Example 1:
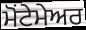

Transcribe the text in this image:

ਮੋਂਟੇਮੇਅਰ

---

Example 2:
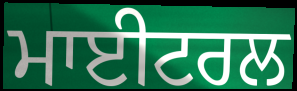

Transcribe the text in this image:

ਮਾਈਟਰਲ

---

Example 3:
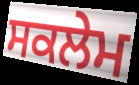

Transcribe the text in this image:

ਸਕਲੇਮ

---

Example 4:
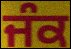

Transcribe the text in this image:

ਜੰਕ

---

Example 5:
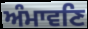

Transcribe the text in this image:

ਅੰਮਾਵਣਿ